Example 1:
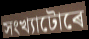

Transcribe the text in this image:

সংখ্যাটোৰে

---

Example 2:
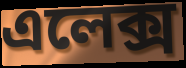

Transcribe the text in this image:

এলেক্স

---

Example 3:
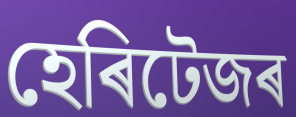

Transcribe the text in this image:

হেৰিটেজৰ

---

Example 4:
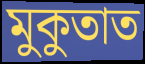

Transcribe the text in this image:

মুকুতাত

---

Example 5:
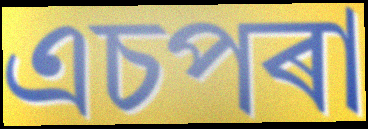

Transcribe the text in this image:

এচপৰা